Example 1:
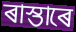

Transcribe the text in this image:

ৰাস্তাৰে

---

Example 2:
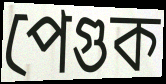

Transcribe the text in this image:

পেগুক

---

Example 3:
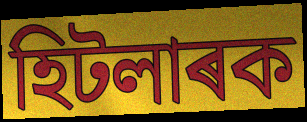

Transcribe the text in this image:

হিটলাৰক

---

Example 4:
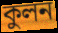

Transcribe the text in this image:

কুলন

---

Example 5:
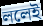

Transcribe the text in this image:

ললেই